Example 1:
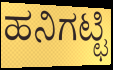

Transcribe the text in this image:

ಹನಿಗಟ್ಟಿ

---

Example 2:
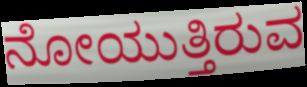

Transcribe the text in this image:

ನೋಯುತ್ತಿರುವ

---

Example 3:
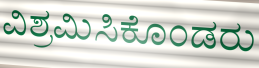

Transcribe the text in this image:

ವಿಶ್ರಮಿಸಿಕೊಂಡರು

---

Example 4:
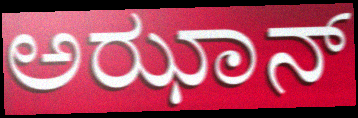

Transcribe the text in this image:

ಅಝಾನ್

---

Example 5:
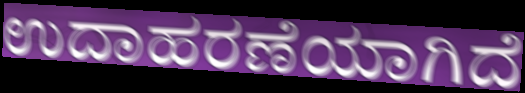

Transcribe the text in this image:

ಉದಾಹರಣೆಯಾಗಿದೆ